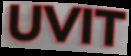
UVIT